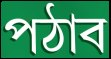
পঠাব